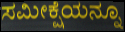
ಸಮೀಕ್ಷೆಯನ್ನೂ